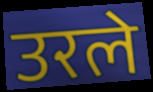
उरले